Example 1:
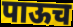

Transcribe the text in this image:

पाऊच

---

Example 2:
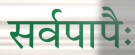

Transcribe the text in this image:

सर्वपापैः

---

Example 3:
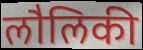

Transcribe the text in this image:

लौलिकी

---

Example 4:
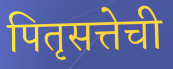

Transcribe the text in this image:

पितृसत्तेची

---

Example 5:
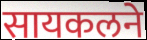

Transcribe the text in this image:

सायकलने